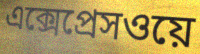
এক্সেপ্রেসওয়ে